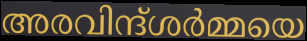
അരവിന്ദ്ശർമ്മയെ